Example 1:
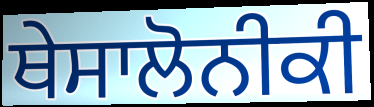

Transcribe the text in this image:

ਥੇਸਾਲੋਨੀਕੀ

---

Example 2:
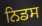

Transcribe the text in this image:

ਨਿਡਸ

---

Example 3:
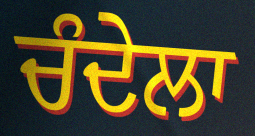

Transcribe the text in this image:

ਚੰਦੇਲਾ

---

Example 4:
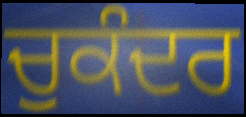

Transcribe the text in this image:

ਚੁਕੰਦਰ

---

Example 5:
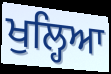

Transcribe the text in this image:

ਖੁਲ੍ਹਿਆ